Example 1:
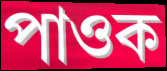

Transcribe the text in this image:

পাওক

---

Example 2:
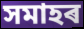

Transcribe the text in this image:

সমাহৰ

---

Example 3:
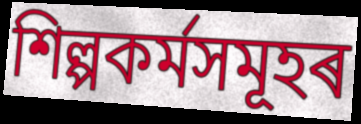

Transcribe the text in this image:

শিল্পকৰ্মসমূহৰ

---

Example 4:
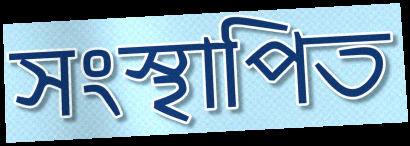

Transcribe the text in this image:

সংস্থাপিত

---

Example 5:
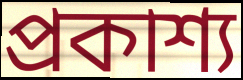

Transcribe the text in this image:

প্ৰকাশ্য